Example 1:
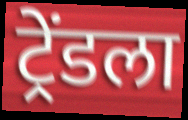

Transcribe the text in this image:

ट्रेंडला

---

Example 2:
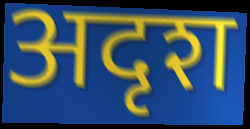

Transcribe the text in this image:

अदृश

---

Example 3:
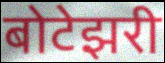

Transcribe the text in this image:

बोटेझरी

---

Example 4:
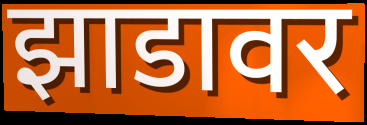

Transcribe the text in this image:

झाडावर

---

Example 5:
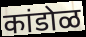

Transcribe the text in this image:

कांडोळ